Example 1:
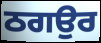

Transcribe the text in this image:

ਠਗਉਰ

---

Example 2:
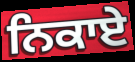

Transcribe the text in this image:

ਨਿਕਾਏ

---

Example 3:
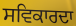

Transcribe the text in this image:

ਸਵਿਕਾਰਦਾ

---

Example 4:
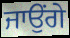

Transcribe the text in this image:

ਜਾਉਂਗੇ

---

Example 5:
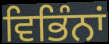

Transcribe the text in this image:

ਵਿਭਿੰਨਾਂ